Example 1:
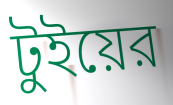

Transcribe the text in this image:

টুইয়ের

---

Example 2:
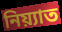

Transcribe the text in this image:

নিয়্যাত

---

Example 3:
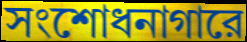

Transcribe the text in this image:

সংশোধনাগারে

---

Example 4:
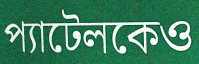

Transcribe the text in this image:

প্যাটেলকেও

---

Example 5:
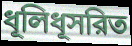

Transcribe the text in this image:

ধূলিধূসরিত